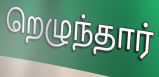
றெழுந்தார்